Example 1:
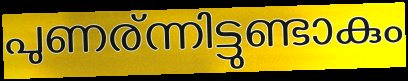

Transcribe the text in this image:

പുണര്ന്നിട്ടുണ്ടാകും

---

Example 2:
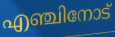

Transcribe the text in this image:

എഞ്ചിനോട്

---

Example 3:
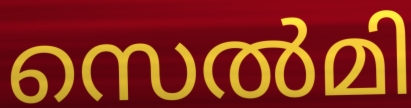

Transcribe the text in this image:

സെൽമി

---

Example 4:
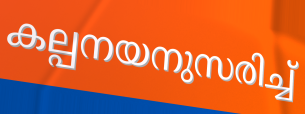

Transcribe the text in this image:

കല്പനയനുസരിച്ച്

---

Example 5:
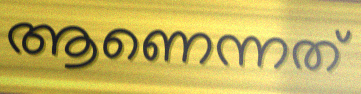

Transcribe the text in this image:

ആണെന്നത്